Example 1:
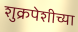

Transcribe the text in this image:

शुक्रपेशीच्या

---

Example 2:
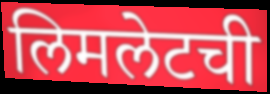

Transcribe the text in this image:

लिमलेटची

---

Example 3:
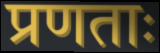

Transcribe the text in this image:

प्रणताः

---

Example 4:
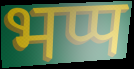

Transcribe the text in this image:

भप्प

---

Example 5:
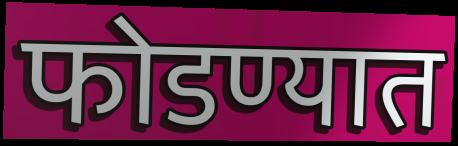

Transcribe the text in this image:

फोडण्यात